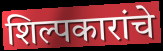
शिल्पकारांचे